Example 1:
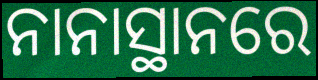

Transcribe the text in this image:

ନାନାସ୍ଥାନରେ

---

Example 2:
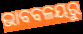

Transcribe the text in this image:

ଭାବବଳୟରୁ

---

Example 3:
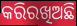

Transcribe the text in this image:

କରିରଖିଅଛି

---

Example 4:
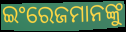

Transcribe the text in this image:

ଇଂରେଜମାନଙ୍କୁ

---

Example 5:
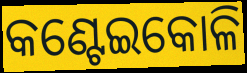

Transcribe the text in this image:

କଣ୍ଟେଇକୋଳି